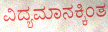
ವಿದ್ಯಮಾನಕ್ಕಿಂತ